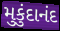
મુકુંદાનંદ